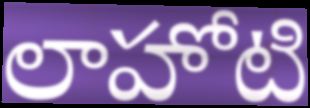
లాహోటి